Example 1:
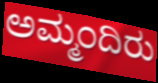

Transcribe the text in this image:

ಅಮ್ಮಂದಿರು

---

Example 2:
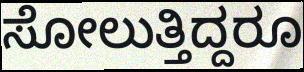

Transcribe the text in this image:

ಸೋಲುತ್ತಿದ್ದರೂ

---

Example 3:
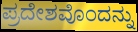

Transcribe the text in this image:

ಪ್ರದೇಶವೊಂದನ್ನು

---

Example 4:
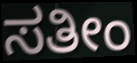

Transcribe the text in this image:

ಸತೀಂ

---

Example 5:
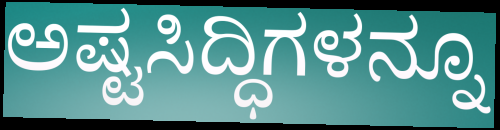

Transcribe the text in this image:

ಅಷ್ಟಸಿದ್ಧಿಗಳನ್ನೂ